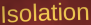
Isolation